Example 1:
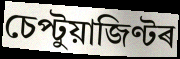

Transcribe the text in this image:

চেপ্টুয়াজিণ্টৰ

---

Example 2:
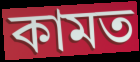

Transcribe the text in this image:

কামত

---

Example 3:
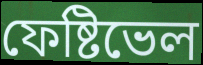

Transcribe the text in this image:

ফেষ্টিভেল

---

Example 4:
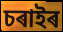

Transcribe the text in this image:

চৰাইৰ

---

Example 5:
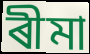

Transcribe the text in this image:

ৰীমা